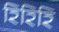
হিহিহি